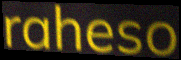
raheso